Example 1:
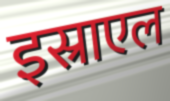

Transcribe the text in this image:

इस्राएल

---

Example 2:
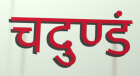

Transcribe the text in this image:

चदुण्डं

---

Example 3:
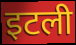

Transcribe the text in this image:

इटली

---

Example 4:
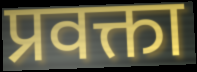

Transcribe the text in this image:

प्रवक्ता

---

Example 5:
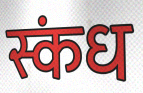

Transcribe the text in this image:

स्कंध